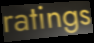
ratings